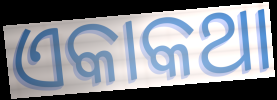
ଏକାକଥା